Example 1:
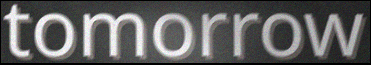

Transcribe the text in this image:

tomorrow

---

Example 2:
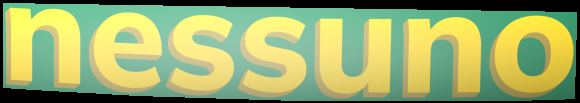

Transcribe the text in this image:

nessuno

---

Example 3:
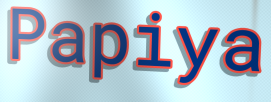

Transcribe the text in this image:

Papiya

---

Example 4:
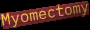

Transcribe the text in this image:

Myomectomy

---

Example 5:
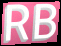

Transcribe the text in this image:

RB